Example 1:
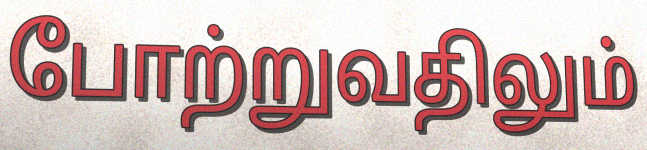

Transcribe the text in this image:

போற்றுவதிலும்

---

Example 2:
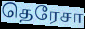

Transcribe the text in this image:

தெரேசா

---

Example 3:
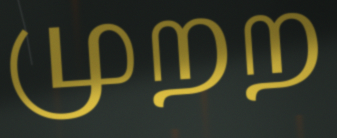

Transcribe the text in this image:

முறற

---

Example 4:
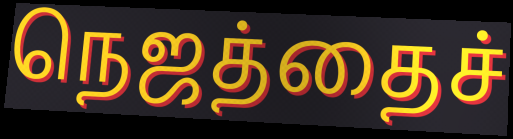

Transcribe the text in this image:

நெஜத்தைச்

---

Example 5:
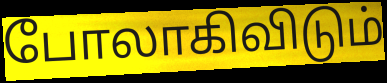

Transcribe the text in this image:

போலாகிவிடும்